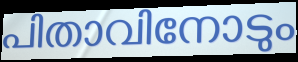
പിതാവിനോടും